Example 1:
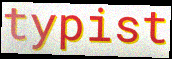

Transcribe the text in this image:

typist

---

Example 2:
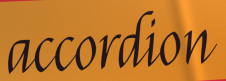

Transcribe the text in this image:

accordion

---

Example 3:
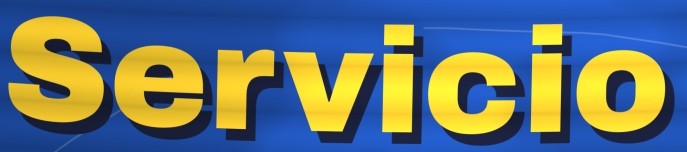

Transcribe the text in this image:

Servicio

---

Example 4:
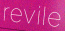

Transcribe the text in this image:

revile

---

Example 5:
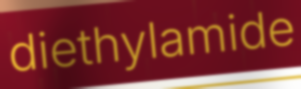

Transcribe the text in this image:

diethylamide